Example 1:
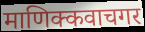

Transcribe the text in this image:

माणिक्कवाचगर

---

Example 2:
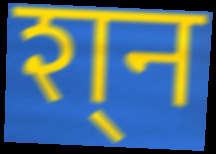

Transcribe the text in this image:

श्न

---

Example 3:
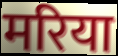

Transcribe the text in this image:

मरिया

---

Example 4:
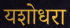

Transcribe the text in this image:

यशोधरा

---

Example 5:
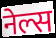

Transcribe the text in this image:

नेल्स